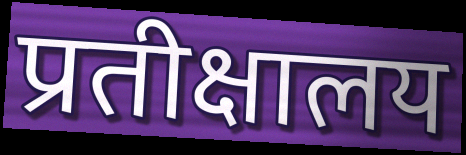
प्रतीक्षालय